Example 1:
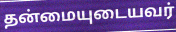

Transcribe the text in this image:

தன்மையுடையவர்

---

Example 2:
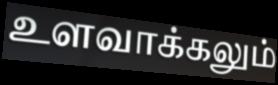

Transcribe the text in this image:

உளவாக்கலும்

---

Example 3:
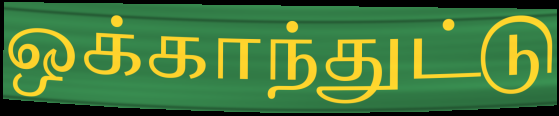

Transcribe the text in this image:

ஒக்காந்துட்டு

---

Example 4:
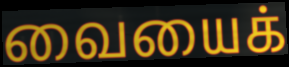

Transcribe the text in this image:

வையைக்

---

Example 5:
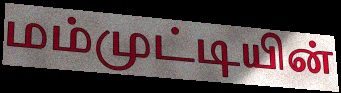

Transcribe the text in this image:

மம்முட்டியின்